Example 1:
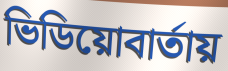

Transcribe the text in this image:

ভিডিয়োবার্তায়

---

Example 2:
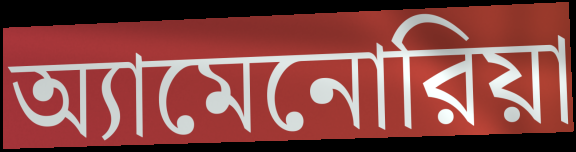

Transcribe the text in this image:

অ্যামেনোরিয়া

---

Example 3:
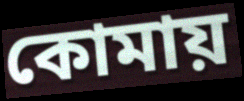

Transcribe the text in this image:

কোমায়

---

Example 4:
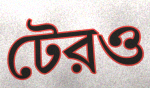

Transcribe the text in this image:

টেরও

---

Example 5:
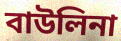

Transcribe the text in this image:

বাউলিনা